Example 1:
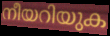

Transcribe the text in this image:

നീയറിയുക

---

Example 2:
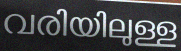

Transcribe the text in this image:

വരിയിലുള്ള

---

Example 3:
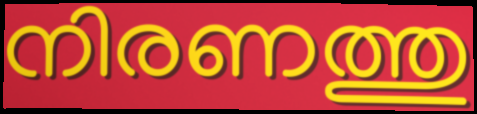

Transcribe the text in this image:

നിരണത്തു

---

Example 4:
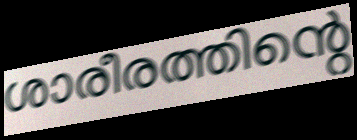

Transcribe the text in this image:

ശാരീരത്തിന്റെ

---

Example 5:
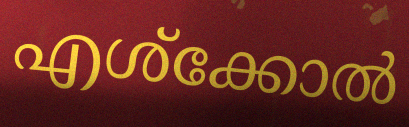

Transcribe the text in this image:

എശ്ക്കോൽ